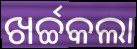
ଖର୍ଚ୍ଚକଲା